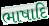
ભાષાદિ